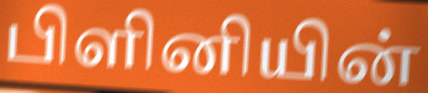
பிளினியின்